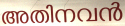
അതിനവൻ